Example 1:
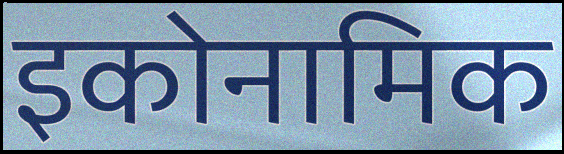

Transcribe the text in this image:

इकोनामिक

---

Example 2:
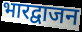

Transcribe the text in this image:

भारद्वाजन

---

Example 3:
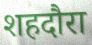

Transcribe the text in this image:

शहदौरा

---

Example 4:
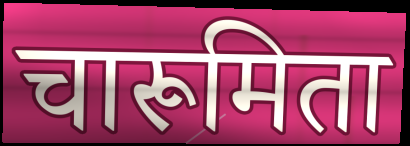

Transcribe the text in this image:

चारूमिता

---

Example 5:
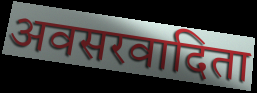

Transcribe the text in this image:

अवसरवादिता